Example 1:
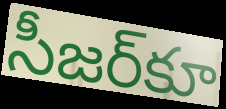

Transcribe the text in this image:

సీజర్‌కూ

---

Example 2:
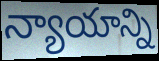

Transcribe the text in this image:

న్యాయాన్ని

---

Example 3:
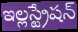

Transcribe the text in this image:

ఇల్లస్ట్రేషన్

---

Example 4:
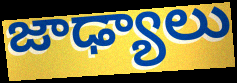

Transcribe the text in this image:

జాఢ్యాలు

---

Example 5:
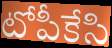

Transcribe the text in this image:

టోపీకేసి